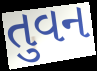
તુવન